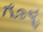
ಗೊಳ್ಳ